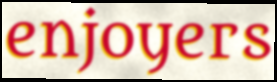
enjoyers